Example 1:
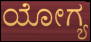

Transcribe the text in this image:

ಯೋಗ್ಯ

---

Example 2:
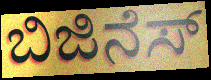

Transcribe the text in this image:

ಬಿಜಿನೆಸ್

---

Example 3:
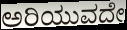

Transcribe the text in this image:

ಅರಿಯುವದೇ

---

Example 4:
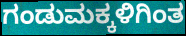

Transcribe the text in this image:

ಗಂಡುಮಕ್ಕಳಿಗಿಂತ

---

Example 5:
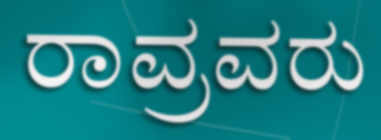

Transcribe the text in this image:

ರಾವ್ರವರು